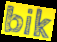
bik